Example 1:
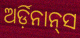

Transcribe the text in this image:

ଅର୍ଡ଼ିନାନ୍‌ସ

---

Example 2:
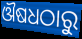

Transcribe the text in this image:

ଔଷଧଠାରୁ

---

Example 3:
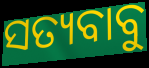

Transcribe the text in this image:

ସତ୍ୟବାବୁ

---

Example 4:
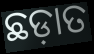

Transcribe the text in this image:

ଛଡ଼ାତ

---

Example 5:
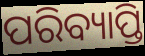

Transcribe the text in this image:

ପରିବ୍ୟାପ୍ତି